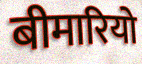
बीमारियो